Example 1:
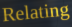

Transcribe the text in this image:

Relating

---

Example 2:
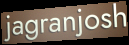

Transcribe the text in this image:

jagranjosh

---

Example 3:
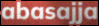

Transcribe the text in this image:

abasajja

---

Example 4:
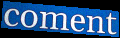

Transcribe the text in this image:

coment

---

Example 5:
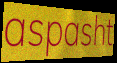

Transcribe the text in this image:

aspasht